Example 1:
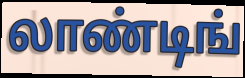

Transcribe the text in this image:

லாண்டிங்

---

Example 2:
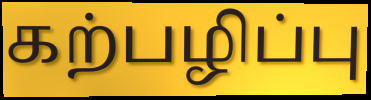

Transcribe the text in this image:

கற்பழிப்பு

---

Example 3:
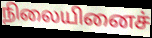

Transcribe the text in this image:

நிலையினைச்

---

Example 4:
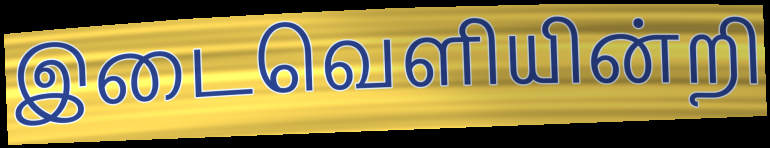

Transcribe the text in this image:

இடைவெளியின்றி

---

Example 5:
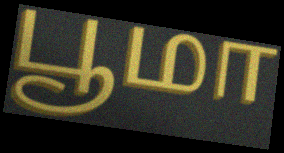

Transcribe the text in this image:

பூமா